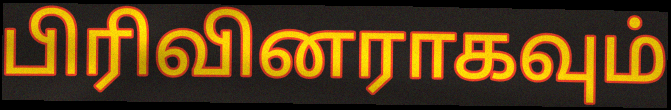
பிரிவினராகவும்